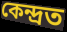
কেন্দ্ৰত